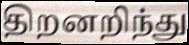
திறனறிந்து